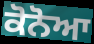
ਕੋਨੋਆ